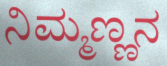
ನಿಮ್ಮಣ್ಣನ